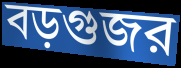
বড়গুজর